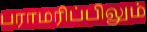
பராமரிப்பிலும்